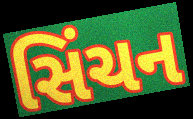
સિંચન